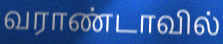
வராண்டாவில்